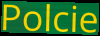
Polcie